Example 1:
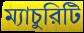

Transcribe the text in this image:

ম্যাচুরিটি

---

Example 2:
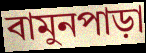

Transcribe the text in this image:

বামুনপাড়া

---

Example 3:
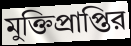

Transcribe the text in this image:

মুক্তিপ্রাপ্তির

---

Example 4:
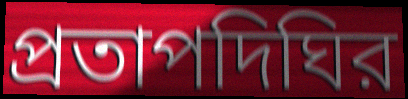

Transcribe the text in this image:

প্রতাপদিঘির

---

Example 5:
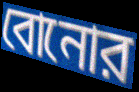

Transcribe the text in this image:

বোনোর